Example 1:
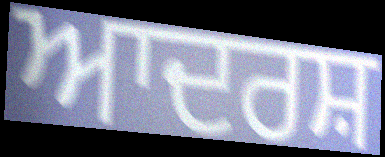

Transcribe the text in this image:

ਆਦਰਸ਼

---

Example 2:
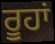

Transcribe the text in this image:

ਰੂਹਾਂ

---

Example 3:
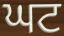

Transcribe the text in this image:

ਘਟ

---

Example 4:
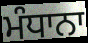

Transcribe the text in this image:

ਮੰਧਾਨਾ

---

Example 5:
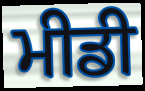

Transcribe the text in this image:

ਮੀਡੀ